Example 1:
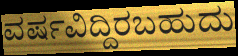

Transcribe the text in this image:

ವರ್ಷವಿದ್ದಿರಬಹುದು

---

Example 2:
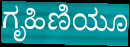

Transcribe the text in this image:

ಗೃಹಿಣಿಯೂ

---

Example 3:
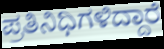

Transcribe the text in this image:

ಪ್ರತಿನಿಧಿಗಳಿದ್ದಾರೆ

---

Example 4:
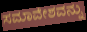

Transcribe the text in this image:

ಸಮಾವೇಶವನ್ನು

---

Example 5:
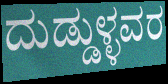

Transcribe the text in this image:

ದುಡ್ಡುಳ್ಳವರ